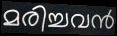
മരിച്ചവൻ